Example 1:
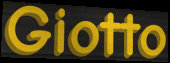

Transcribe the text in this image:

Giotto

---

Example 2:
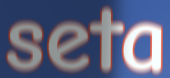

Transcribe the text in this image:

seta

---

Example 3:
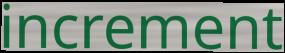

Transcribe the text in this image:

increment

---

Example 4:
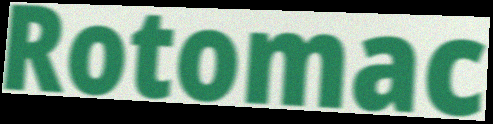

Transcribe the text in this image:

Rotomac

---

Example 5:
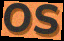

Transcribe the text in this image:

OS